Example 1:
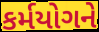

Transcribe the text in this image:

કર્મયોગને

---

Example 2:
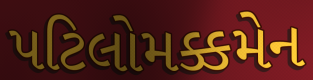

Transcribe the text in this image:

પટિલોમક્કમેન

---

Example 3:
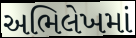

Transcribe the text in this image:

અભિલેખમાં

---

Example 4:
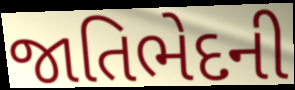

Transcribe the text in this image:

જાતિભેદની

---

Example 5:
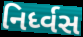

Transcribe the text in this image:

નિર્ધ્વસ